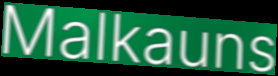
Malkauns